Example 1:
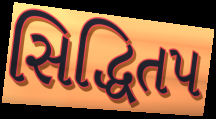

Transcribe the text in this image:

સિદ્ધિતપ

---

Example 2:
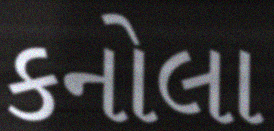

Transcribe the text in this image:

કનોલા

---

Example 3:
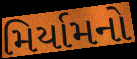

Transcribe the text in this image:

મિર્યામનો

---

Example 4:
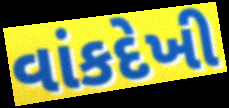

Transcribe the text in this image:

વાંકદેખી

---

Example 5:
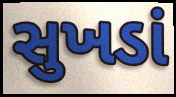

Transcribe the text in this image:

સુખડાં